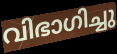
വിഭാഗിച്ചു